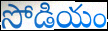
సోడియం